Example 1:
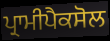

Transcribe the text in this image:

ਪ੍ਰਾਮੀਪੈਕਸੋਲ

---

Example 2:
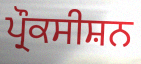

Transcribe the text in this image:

ਪ੍ਰੌਕਸੀਸ਼ਨ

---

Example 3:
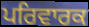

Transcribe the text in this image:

ਪਰਿਵਾਰਕ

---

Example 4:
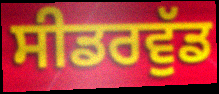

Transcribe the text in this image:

ਸੀਡਰਵੁੱਡ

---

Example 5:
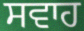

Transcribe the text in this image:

ਸਵਾਹ